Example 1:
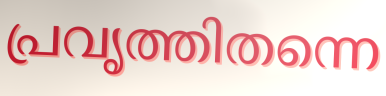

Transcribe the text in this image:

പ്രവൃത്തിതന്നെ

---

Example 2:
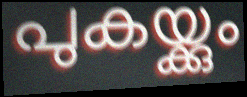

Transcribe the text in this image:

പുകയ്ക്കും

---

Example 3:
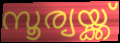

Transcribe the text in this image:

സൂര്യയ്ക്ക്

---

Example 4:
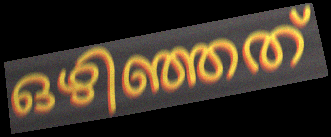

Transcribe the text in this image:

ഒഴിഞ്ഞത്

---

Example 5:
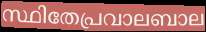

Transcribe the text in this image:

സ്ഥിതേപ്രവാലബാല